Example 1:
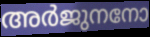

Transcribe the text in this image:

അർജുനനോ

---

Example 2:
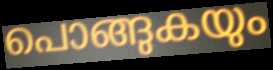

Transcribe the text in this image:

പൊങ്ങുകയും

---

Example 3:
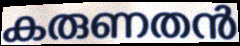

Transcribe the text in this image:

കരുണതൻ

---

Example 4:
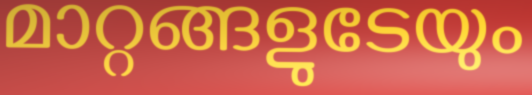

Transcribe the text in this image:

മാറ്റങ്ങളുടേയും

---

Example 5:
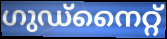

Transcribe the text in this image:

ഗുഡ്നൈറ്റ്